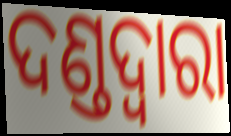
ଦଣ୍ଡଦ୍ବାରା